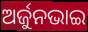
ଅର୍ଜୁନଭାଇ